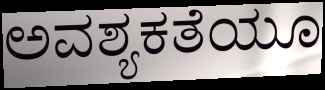
ಅವಶ್ಯಕತೆಯೂ